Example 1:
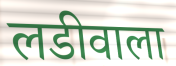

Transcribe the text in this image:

लडीवाला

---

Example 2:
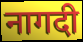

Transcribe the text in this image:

नागदी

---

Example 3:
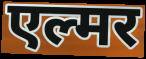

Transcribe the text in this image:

एल्मर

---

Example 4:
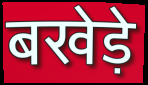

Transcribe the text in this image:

बखेड़े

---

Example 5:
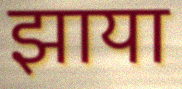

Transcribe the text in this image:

झाया